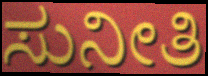
ಸುನೀತಿ